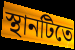
স্থানটিতে